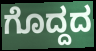
ಗೊದ್ದದ